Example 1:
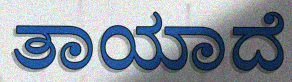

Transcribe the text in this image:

ತಾಯಾದೆ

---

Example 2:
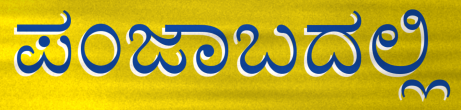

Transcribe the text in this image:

ಪಂಜಾಬದಲ್ಲಿ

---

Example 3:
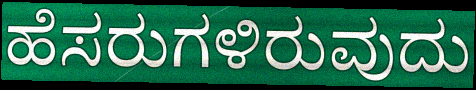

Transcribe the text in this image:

ಹೆಸರುಗಳಿರುವುದು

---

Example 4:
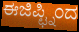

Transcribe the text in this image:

ಈಜಿಪ್ಟ್ನಿಂದ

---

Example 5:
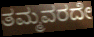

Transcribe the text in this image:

ತಮ್ಮವರದೇ